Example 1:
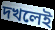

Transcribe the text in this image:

দখলেই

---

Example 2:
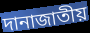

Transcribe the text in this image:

দানাজাতীয়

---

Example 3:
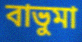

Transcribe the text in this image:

বাভুমা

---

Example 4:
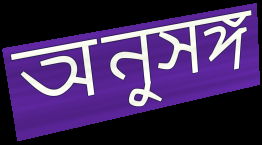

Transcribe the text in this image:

অনুসঙ্গ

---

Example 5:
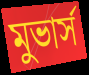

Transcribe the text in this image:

মুভার্স